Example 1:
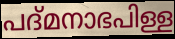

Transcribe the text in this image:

പദ്മനാഭപിള്ള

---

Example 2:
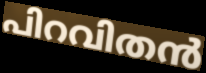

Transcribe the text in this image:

പിറവിതൻ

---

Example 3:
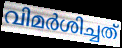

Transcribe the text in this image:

വിമർശിച്ചത്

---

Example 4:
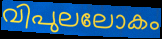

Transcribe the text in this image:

വിപുലലോകം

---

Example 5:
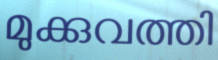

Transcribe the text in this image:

മുക്കുവത്തി